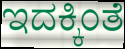
ಇದಕ್ಕಿಂತೆ